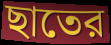
ছাতের